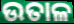
ଉତାଳ